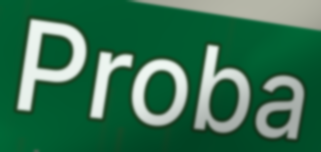
Proba